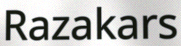
Razakars